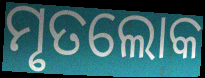
ମୃତଲୋକ